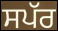
ਸਪੱਰ